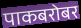
पाकबरोबर